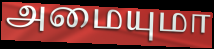
அமையுமா